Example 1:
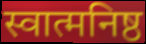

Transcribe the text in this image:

स्वात्मनिष्ठ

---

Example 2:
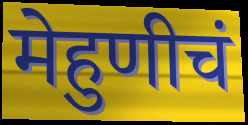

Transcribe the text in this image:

मेहुणीचं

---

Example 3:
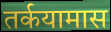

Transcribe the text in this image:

तर्कयामास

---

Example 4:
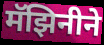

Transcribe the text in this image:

मॅझिनीने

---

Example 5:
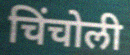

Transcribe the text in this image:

चिंचोली